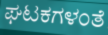
ಘಟಕಗಳಂತೆ